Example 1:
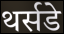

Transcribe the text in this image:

थर्सडे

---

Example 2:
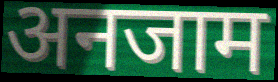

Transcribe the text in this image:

अनजाम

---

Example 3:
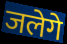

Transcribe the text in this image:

जलेगे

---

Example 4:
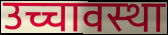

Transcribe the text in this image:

उच्चावस्था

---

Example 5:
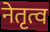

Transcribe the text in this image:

नेतृत्व